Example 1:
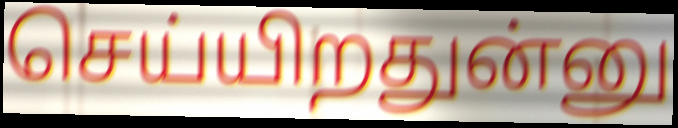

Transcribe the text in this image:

செய்யிறதுன்னு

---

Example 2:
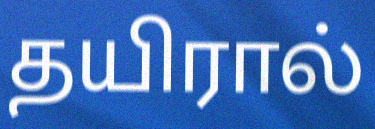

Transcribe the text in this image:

தயிரால்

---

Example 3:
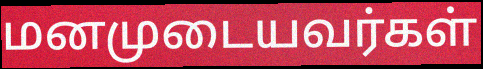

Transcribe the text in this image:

மனமுடையவர்கள்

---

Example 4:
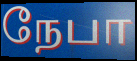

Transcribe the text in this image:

நேபா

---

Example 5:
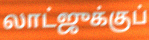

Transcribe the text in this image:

லாட்ஜுக்குப்